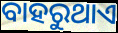
ବାହରୁଥାଏ